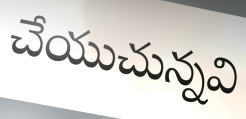
చేయుచున్నవి